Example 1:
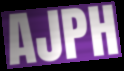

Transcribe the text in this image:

AJPH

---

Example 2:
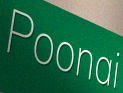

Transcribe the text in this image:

Poonai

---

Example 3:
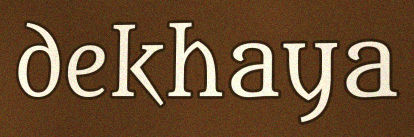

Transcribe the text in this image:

dekhaya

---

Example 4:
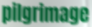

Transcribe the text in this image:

pilgrimage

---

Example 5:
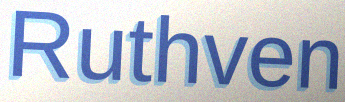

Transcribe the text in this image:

Ruthven